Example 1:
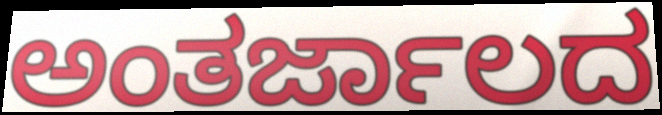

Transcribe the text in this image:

ಅಂತರ್ಜಾಲದ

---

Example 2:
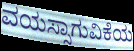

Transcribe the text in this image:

ವಯಸ್ಸಾಗುವಿಕೆಯ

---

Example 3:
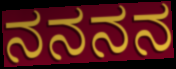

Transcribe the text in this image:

ನನನನ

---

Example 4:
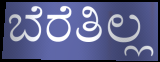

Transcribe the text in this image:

ಬೆರೆತಿಲ್ಲ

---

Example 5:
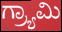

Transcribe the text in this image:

ಗ್ರ್ಯಾಮಿ